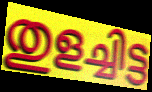
തുളച്ചിട്ട